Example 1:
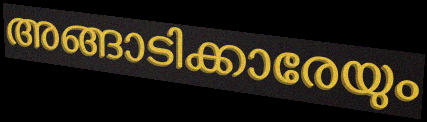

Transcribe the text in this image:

അങ്ങാടിക്കാരേയും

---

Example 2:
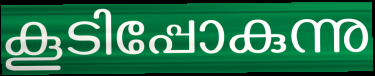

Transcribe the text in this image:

കൂടിപ്പോകുന്നു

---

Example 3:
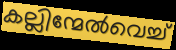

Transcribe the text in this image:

കല്ലിന്മേൽവെച്ച്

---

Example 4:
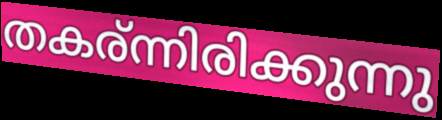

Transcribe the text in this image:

തകര്ന്നിരിക്കുന്നു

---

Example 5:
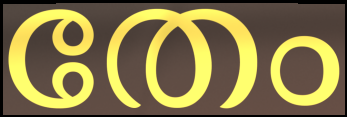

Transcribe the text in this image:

തേം